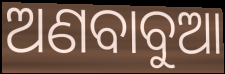
ଅଣବାବୁଆ